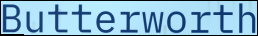
Butterworth